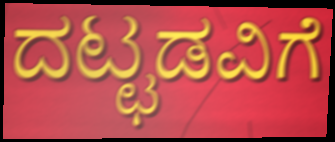
ದಟ್ಟಡವಿಗೆ